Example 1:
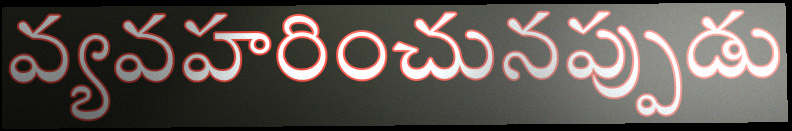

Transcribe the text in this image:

వ్యవహరించునప్పుడు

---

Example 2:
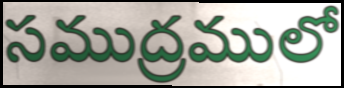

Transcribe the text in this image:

సముద్రములో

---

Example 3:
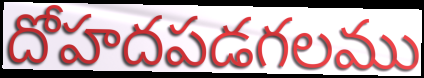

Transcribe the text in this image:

దోహదపడగలము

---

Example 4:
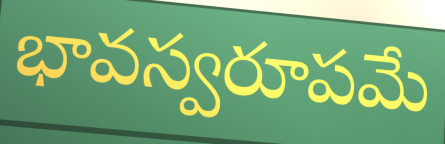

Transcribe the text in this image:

భావస్వరూపమే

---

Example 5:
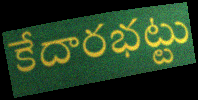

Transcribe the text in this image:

కేదారభట్టు